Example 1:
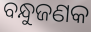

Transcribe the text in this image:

ବନ୍ଧୁଜଣକ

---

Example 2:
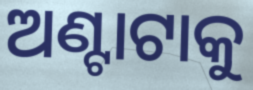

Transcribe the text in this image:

ଅଣ୍ଟାଟାକୁ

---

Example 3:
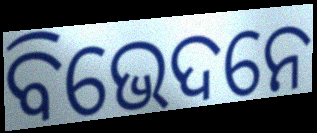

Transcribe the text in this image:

ବିଭେଦନେ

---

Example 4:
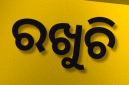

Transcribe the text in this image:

ରଖୁଚି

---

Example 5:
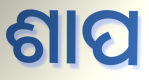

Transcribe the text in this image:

ଶାପ